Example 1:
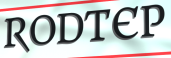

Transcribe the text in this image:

RODTEP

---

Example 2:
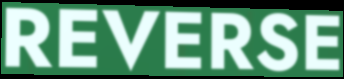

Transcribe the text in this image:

REVERSE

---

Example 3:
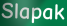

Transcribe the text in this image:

Slapak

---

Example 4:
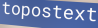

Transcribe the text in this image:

topostext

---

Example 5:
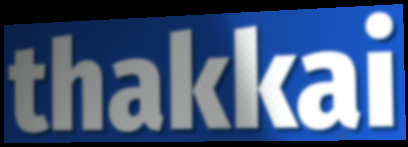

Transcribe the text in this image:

thakkai